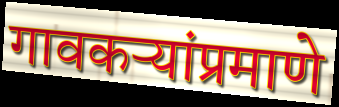
गावकऱ्यांप्रमाणे